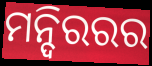
ମନ୍ଦିରରର